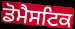
ਡੋਮੈਸਟਿਕ